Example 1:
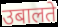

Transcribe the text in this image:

उबालते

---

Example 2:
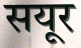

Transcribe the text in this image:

सयूर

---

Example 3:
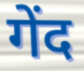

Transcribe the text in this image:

गेंद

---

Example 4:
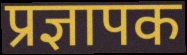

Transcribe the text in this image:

प्रज्ञापक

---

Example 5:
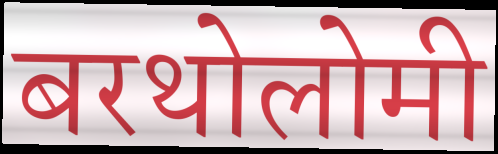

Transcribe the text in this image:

बरथोलोमी